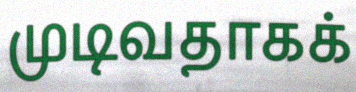
முடிவதாகக்